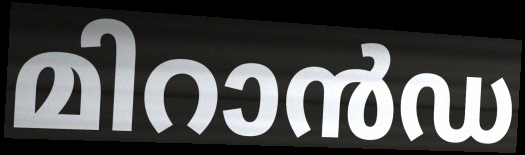
മിറാൻഡ